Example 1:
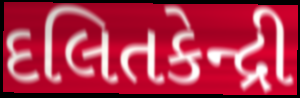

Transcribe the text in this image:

દલિતકેન્દ્રી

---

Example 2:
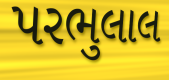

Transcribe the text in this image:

પરભુલાલ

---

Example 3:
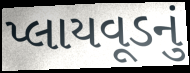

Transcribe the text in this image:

પ્લાયવૂડનું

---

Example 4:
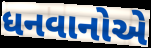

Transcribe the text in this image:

ધનવાનોએ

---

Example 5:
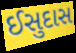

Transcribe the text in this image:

ઈસુદાસ